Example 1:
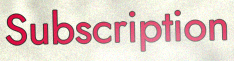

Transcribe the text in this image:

Subscription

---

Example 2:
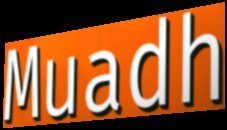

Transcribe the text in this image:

Muadh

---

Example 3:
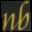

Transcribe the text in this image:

nb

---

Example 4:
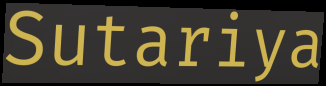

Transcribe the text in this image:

Sutariya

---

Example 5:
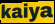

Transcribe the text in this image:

kaiya